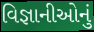
વિજ્ઞાનીઓનું